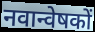
नवान्वेषकों